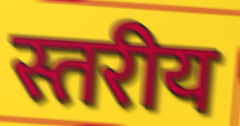
स्तरीय